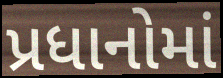
પ્રધાનોમાં